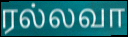
ரல்லவா